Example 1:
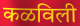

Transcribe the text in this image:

कळविली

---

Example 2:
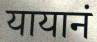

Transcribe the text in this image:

यायानं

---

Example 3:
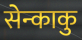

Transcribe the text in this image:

सेन्काकु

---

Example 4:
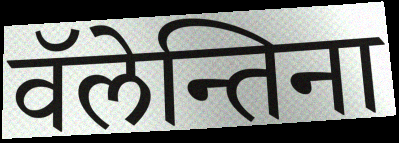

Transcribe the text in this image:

वॅलेन्तिना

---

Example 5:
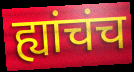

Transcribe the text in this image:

ह्यांचंच